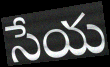
సేయ